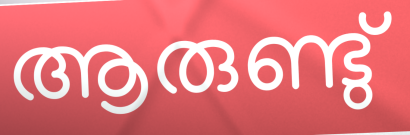
ആരുണ്ടു്